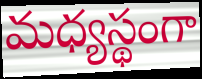
మధ్యస్థంగా